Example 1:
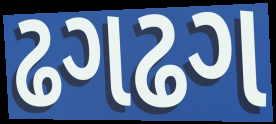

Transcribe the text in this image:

ઢગઢગ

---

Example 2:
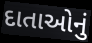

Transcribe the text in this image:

દાતાઓનું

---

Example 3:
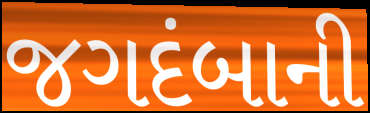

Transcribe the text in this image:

જગદંબાની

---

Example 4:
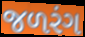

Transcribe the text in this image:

જળરંગ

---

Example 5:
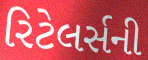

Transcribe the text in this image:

રિટેલર્સની